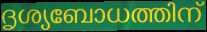
ദൃശ്യബോധത്തിന്